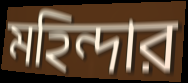
মহিন্দার